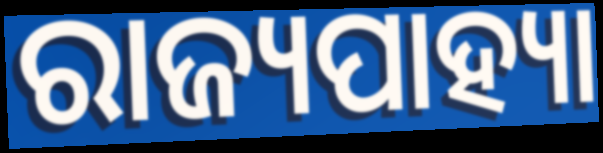
ରାଜ୍ୟପାହ୍ୟା